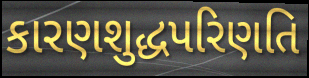
કારણશુદ્ધપરિણતિ